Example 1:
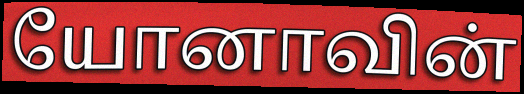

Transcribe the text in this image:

யோனாவின்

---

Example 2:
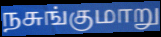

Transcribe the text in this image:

நசுங்குமாறு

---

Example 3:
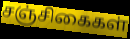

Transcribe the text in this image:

சஞ்சிகைகள்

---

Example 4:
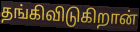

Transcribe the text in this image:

தங்கிவிடுகிறான்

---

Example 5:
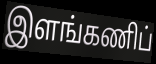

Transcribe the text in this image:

இளங்கணிப்